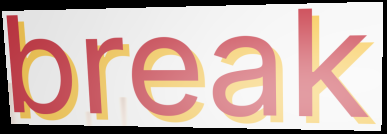
break